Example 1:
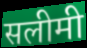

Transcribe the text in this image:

सलीमी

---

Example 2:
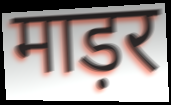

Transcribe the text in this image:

माड़र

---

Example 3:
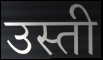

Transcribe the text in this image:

उस्ती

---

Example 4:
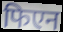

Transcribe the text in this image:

फिएन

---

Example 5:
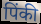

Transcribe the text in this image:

पिंकी